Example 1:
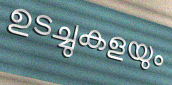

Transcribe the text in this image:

ഉടച്ചുകളയും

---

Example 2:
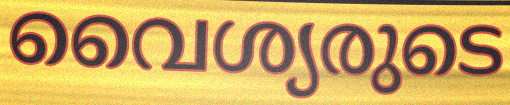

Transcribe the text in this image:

വൈശ്യരുടെ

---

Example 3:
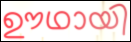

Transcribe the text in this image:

ഊഥായി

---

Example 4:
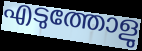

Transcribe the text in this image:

എടുത്തോളു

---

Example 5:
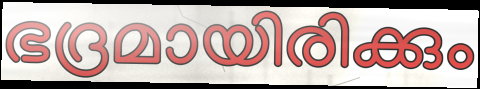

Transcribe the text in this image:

ഭദ്രമായിരിക്കും